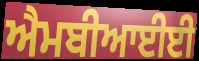
ਐਮਬੀਆਈਈ